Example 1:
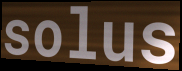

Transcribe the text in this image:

solus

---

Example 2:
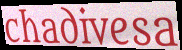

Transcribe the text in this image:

chadivesa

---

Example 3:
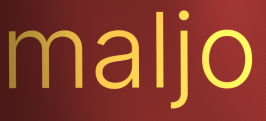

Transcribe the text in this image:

maljo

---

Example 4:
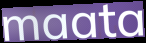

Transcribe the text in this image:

maata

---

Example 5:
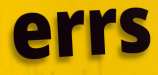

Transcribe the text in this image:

errs